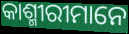
କାଶ୍ମୀରୀମାନେ